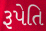
રૂપેતિ